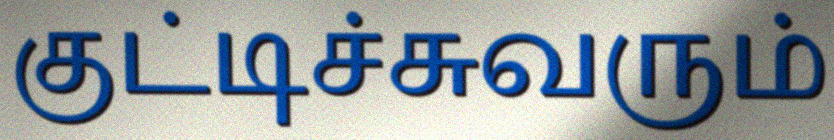
குட்டிச்சுவரும்